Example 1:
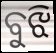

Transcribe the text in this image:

ବୁଝି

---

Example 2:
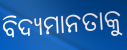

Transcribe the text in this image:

ବିଦ୍ୟମାନତାକୁ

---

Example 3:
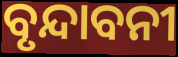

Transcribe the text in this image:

ବୃନ୍ଦାବନୀ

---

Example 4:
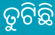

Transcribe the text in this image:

ତୁଟିଛି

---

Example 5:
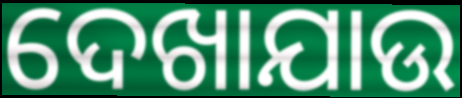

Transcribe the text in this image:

ଦେଖାଯାଉ